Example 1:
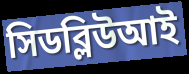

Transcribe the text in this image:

সিডব্লিউআই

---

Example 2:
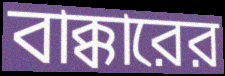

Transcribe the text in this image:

বাক্কারের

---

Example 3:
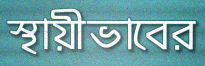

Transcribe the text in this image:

স্থায়ীভাবের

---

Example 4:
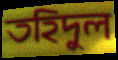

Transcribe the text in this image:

তহিদুল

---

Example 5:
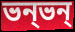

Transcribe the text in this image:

ভন্ভন্